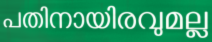
പതിനായിരവുമല്ല